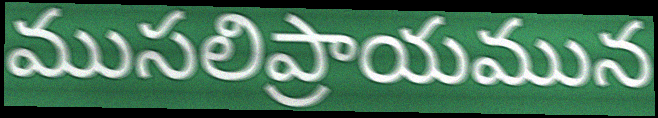
ముసలిప్రాయమున